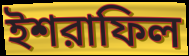
ইশরাফিল